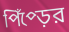
পিঁপ্ড়ের